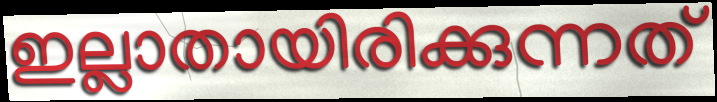
ഇല്ലാതായിരിക്കുന്നത്